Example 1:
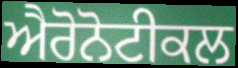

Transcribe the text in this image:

ਐਰੋਨੋਟੀਕਲ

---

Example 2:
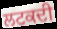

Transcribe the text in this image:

ਲਟਕਦੀ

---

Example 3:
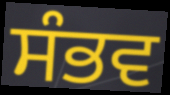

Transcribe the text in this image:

ਸੰਭਵ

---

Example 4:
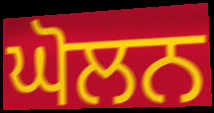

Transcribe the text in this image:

ਘੋਲਨ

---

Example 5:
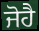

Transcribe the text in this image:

ਜੋਹੈ